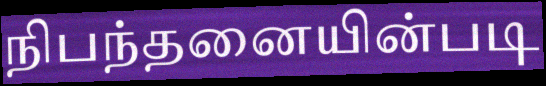
நிபந்தனையின்படி